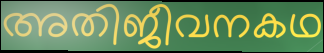
അതിജീവനകഥ